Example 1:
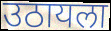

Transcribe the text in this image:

उठायला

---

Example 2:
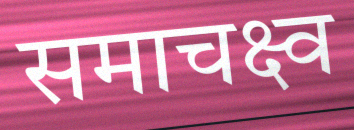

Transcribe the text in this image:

समाचक्ष्व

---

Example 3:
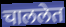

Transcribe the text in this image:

चाललेत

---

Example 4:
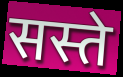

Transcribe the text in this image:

सस्ते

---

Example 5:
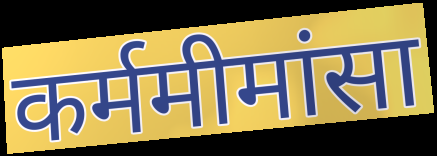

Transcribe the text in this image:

कर्ममीमांसा